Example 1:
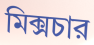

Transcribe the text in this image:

মিক্সচার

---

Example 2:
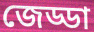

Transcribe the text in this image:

জেড্ডা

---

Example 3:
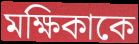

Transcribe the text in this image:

মক্ষিকাকে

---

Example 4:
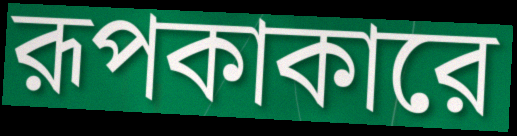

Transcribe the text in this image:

রূপকাকারে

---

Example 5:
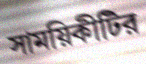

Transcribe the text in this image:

সাময়িকীটির